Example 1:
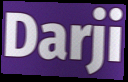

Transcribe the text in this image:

Darji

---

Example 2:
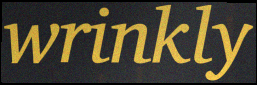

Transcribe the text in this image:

wrinkly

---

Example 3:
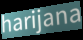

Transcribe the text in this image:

harijana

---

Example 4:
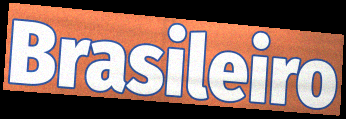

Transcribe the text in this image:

Brasileiro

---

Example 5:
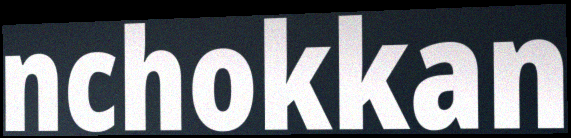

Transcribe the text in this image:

nchokkan